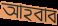
আহবাব